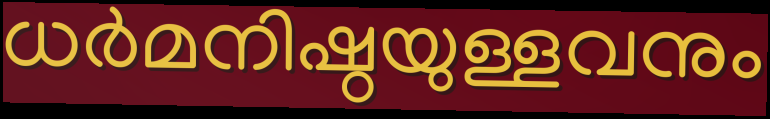
ധർമനിഷ്ഠയുള്ളവനും